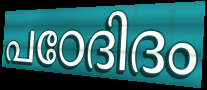
പഠേദിദം